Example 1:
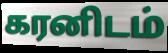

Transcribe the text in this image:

கரனிடம்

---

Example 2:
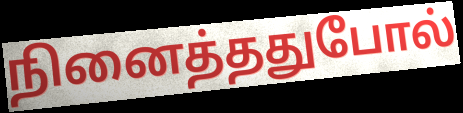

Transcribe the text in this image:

நினைத்ததுபோல்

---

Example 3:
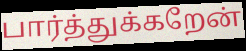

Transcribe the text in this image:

பார்த்துக்கறேன்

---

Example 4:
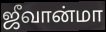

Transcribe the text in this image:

ஜீவான்மா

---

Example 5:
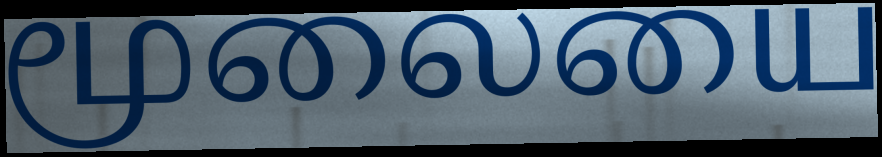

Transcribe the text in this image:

மூலையை